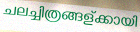
ചലച്ചിത്രങ്ങള്ക്കായി